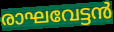
രാഘവേട്ടൻ